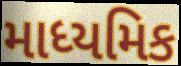
માધ્યમિક